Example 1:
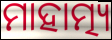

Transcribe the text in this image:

ମାହାତ୍ମ୍ୟ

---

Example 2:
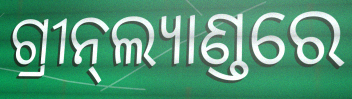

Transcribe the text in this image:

ଗ୍ରୀନ୍‍ଲ୍ୟାଣ୍ଡରେ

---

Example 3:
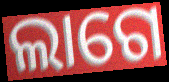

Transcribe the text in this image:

ଲାଗେ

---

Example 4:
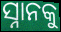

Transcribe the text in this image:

ସ୍ନାନକୁ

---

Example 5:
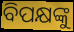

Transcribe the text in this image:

ବିପକ୍ଷଙ୍କୁ